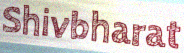
Shivbharat